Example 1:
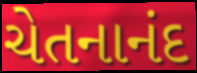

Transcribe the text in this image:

ચેતનાનંદ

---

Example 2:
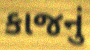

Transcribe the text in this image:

કાજનું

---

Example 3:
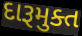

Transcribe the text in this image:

દારૂમુક્ત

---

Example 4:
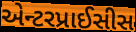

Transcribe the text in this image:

એન્ટરપ્રાઈસીસ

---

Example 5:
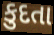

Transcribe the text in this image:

કુદતા